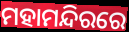
ମହାମନ୍ଦିରରେ